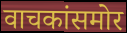
वाचकांसमोर